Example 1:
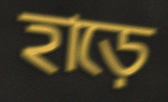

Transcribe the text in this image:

হাড়ে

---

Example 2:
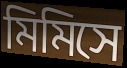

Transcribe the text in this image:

মিমিসে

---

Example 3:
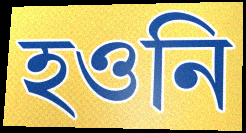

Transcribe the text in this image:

হওনি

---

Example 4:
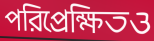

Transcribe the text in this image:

পরিপ্রেক্ষিতও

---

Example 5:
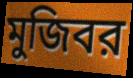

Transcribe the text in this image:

মুজিবর